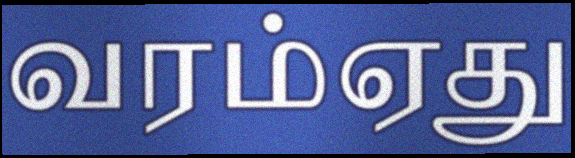
வரம்ஏது